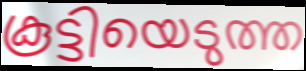
കൂട്ടിയെടുത്ത